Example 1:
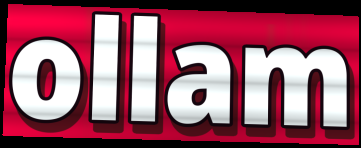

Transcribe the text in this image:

ollam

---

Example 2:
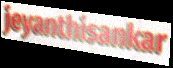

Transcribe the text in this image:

jeyanthisankar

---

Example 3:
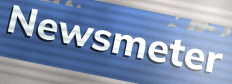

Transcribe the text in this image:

Newsmeter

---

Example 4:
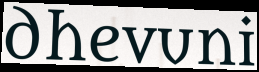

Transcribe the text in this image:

dhevuni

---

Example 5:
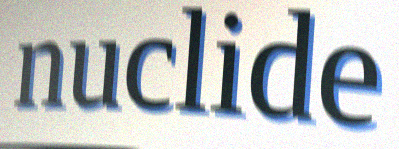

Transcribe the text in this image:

nuclide